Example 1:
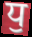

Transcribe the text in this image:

ਧੁ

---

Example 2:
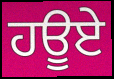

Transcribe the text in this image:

ਹਊਏ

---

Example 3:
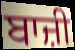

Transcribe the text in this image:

ਬਾਜ਼ੀ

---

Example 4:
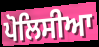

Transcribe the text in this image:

ਪੋਲਿਸੀਆ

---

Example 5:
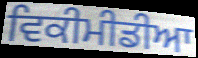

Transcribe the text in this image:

ਵਿਕੀਮੀਡੀਆ